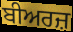
ਬੀਅਰਜ਼